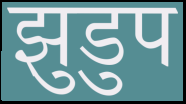
झुडुप